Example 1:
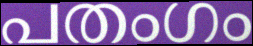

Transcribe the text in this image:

പതംഗം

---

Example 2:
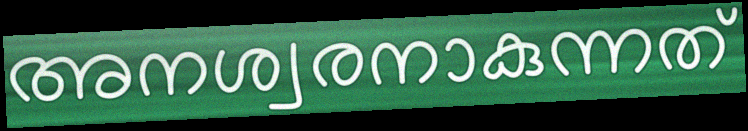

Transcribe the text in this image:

അനശ്വരനാകുന്നത്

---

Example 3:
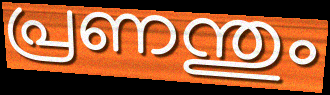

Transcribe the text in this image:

പ്രണന്തും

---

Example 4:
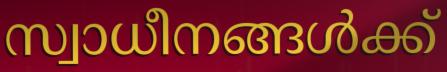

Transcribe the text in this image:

സ്വാധീനങ്ങൾക്ക്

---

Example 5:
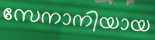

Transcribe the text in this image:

സേനാനിയായ